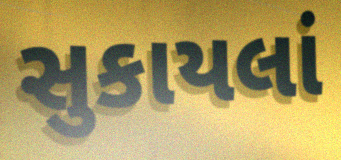
સુકાયલાં